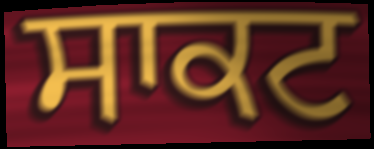
ਸਾਕਟ